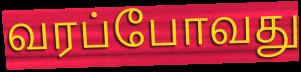
வரப்போவது